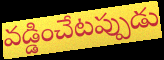
వడ్డించేటప్పుడు